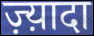
ज़्य़ादा